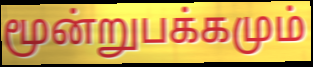
மூன்றுபக்கமும்